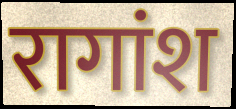
रागांश